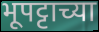
भूपट्टाच्या